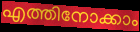
എത്തിനോക്കാം